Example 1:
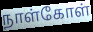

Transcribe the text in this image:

நாள்கோள்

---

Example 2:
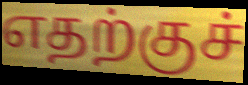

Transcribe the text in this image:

எதற்குச்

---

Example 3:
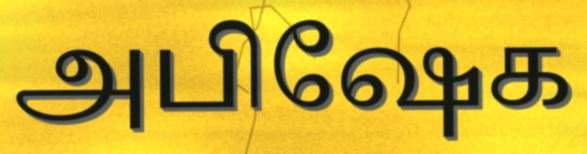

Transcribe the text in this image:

அபிஷேக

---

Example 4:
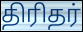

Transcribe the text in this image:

திரிதர்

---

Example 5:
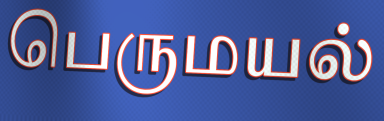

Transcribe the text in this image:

பெருமயல்